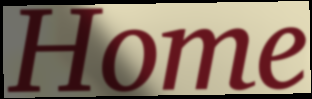
Home